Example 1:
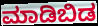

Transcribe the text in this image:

ಮಾಡಿಬಿಡ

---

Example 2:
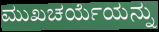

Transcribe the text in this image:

ಮುಖಚರ್ಯೆಯನ್ನು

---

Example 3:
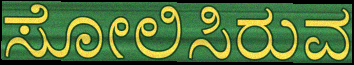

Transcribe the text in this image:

ಸೋಲಿಸಿರುವ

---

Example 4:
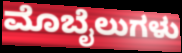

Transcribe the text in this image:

ಮೊಬೈಲುಗಳು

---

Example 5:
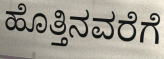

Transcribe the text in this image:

ಹೊತ್ತಿನವರೆಗೆ